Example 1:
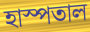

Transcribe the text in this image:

হাস্পতাল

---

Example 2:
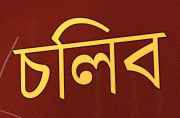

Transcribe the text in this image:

চলিব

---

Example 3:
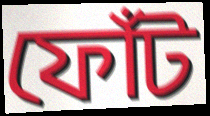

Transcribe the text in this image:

ফোঁট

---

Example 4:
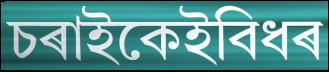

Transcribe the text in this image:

চৰাইকেইবিধৰ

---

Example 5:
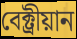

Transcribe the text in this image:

বেক্ট্ৰীয়ান